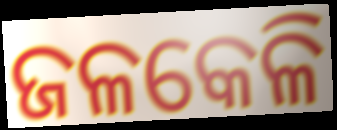
ଜଳକେଳି